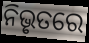
ନିଭୃତରେ